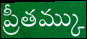
ప్రీతమ్కు